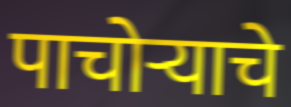
पाचोऱ्याचे